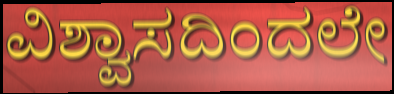
ವಿಶ್ವಾಸದಿಂದಲೇ